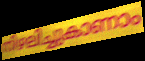
നിഴലിച്ചുകാണാം